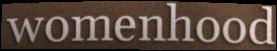
womenhood